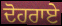
ਦੋਹਰਾਏ